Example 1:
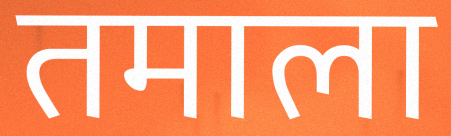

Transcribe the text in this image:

तमाला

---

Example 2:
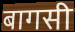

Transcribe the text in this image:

बागसी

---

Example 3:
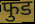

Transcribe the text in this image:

फुड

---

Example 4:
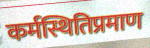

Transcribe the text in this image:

कर्मस्थितिप्रमाण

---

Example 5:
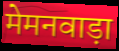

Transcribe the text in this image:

मेमनवाड़ा